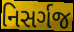
નિસર્ગજ